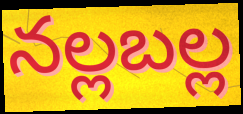
నల్లబల్ల